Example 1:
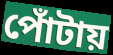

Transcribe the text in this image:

পোঁটায়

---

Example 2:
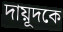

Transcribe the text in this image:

দায়ূদকে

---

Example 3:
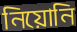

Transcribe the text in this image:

নিয়োনি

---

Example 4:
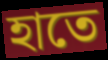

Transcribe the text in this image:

হাতে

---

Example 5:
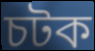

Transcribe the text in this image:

চটক